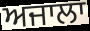
ਅਜਾਲਾ